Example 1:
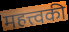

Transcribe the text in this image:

महत्त्वकी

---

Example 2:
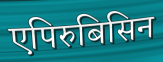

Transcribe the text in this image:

एपिरुबिसिन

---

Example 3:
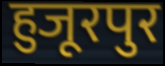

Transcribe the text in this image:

हुजूरपुर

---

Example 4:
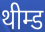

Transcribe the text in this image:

थीम्ड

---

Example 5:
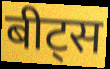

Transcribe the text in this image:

बीट्स